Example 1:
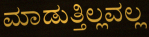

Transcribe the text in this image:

ಮಾಡುತ್ತಿಲ್ಲವಲ್ಲ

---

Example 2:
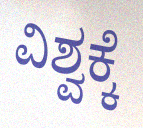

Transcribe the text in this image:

ವಿಶ್ವಕ್ಕೆ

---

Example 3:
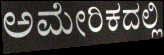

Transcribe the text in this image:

ಅಮೇರಿಕದಲ್ಲಿ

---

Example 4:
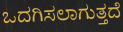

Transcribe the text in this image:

ಒದಗಿಸಲಾಗುತ್ತದೆ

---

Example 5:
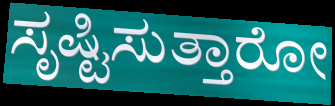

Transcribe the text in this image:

ಸೃಷ್ಟಿಸುತ್ತಾರೋ